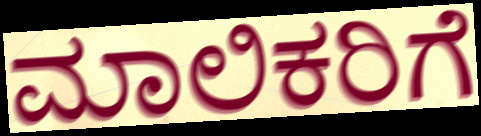
ಮಾಲಿಕರಿಗೆ